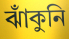
ঝাঁকুনি